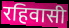
रहिवासी